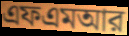
এফএমআর